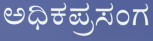
ಅಧಿಕಪ್ರಸಂಗ